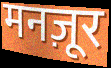
मनज़ूर